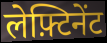
लेफ़्टिनेंट